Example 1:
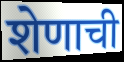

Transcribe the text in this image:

शेणाची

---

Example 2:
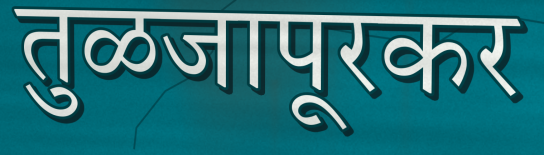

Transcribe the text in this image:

तुळजापूरकर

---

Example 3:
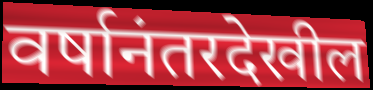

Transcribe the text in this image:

वर्षानंतरदेखील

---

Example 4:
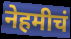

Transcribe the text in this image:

नेहमीचं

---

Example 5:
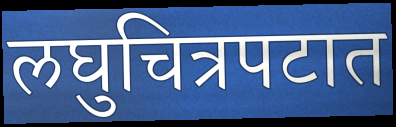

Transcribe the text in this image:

लघुचित्रपटात